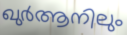
ഖുർആനിലും